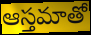
ఆస్తమాతో